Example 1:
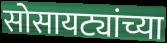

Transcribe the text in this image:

सोसायट्यांच्या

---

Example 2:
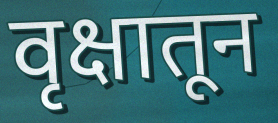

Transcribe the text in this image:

वृक्षातून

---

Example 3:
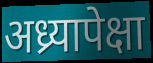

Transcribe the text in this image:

अध्र्यापेक्षा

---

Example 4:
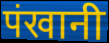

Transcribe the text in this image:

पंखानी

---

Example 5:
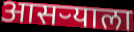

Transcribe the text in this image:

आसऱ्याला